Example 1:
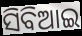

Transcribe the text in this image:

ସିବିଆଇ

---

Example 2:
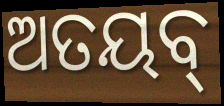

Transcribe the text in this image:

ଅତୟବ୍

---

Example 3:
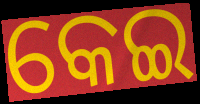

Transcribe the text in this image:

କେଇ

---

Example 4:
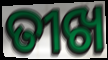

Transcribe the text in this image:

ତୀଖ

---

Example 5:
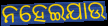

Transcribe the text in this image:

ନହେଇଯାଉ